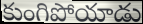
కుంగిపోయాడు